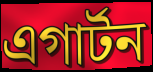
এগার্টন